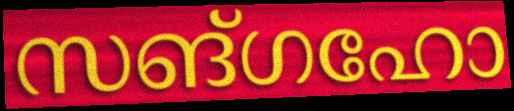
സങ്ഗഹോ